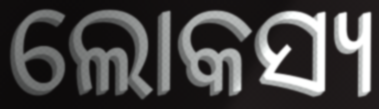
ଲୋକସ୍ୟ